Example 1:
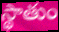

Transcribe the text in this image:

స్థాతుం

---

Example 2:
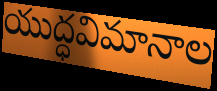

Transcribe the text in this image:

యుద్ధవిమానాల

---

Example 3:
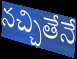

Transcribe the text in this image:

నచ్చితేనే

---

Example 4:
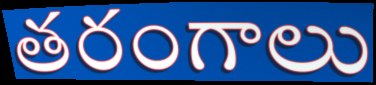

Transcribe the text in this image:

తరంగాలు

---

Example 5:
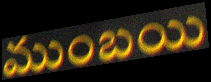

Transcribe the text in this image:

ముంబయి